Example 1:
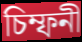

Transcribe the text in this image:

চিম্ফনী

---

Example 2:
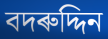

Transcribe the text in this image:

বদৰুদ্দিন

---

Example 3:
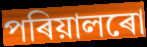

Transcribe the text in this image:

পৰিয়ালৰো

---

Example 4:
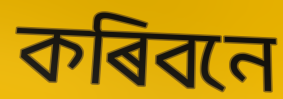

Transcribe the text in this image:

কৰিবনে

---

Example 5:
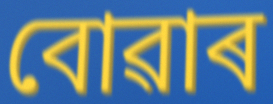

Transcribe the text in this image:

বোৱাৰ